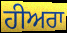
ਹੀਅਰਾ